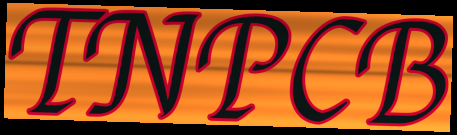
TNPCB